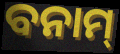
ବନାମ୍